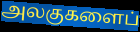
அலகுகளைப்